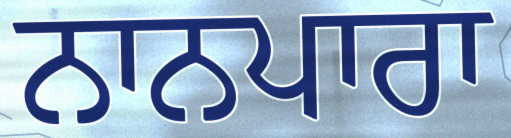
ਨਾਨਪਾਰਾ